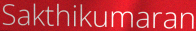
Sakthikumaran